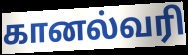
கானல்வரி